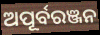
ଅପୂର୍ବରଞ୍ଜନ